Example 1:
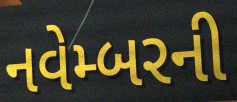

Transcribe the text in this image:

નવેમ્બરની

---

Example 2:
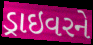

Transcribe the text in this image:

ડ્રાઇવરને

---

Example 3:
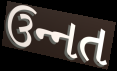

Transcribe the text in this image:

ઉન્‍નત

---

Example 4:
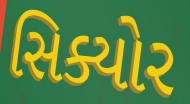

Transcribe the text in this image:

સિક્યોર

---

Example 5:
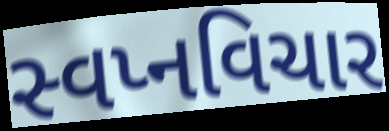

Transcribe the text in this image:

સ્વપ્નવિચાર